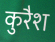
कुरैश